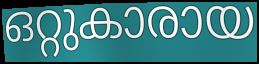
ഒറ്റുകാരായ